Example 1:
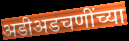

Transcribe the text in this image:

अडीअडचणींच्या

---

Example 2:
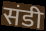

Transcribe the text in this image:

संडी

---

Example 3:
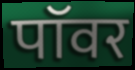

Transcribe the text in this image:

पॉवर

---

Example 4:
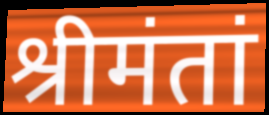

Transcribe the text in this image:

श्रीमंतां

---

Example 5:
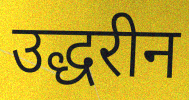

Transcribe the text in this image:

उद्धरीन